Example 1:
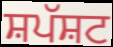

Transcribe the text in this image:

ਸ਼ਪੱਸ਼ਟ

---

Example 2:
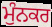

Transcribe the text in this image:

ਮੁੰਨਕਰ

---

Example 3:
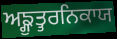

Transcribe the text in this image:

ਅਙ੍ਗੁਤ੍ਤਰਨਿਕਾਯ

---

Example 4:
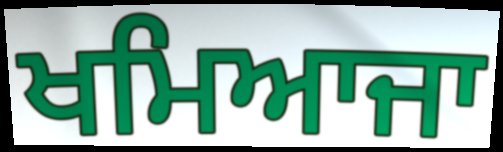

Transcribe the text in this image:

ਖਮਿਆਜਾ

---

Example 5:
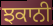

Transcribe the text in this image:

ਝਕਾਨੀ